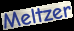
Meltzer